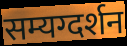
सम्‍यग्‍दर्शन